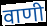
वाणी